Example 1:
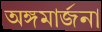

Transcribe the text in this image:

অঙ্গমার্জনা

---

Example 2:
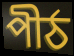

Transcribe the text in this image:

পীঠ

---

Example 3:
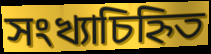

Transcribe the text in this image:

সংখ্যাচিহ্নিত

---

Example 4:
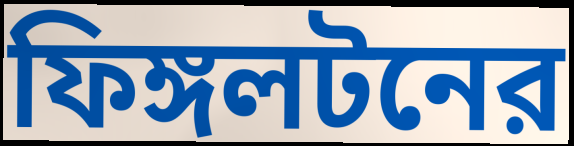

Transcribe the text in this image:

ফিঙ্গলটনের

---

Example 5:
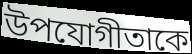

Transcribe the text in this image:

উপযোগীতাকে